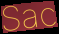
Sac